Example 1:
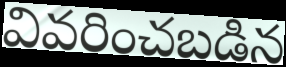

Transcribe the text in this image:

వివరించబడిన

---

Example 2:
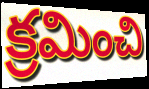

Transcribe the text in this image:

క్రమించి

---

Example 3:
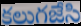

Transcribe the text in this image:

కలుగజేసి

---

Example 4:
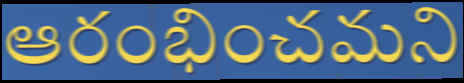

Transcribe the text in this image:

ఆరంభించమని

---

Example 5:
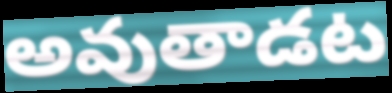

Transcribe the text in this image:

అవుతాడట